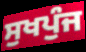
ਸੁਖਪੁੰਜ